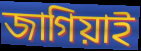
জাগিয়াই